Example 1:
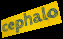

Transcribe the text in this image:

cephalo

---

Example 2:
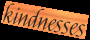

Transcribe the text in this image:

kindnesses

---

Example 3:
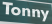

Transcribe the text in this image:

Tonny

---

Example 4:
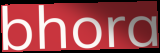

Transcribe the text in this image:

bhora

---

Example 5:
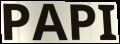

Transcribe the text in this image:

PAPI